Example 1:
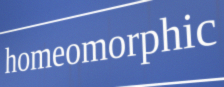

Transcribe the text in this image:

homeomorphic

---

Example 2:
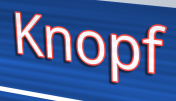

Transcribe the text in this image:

Knopf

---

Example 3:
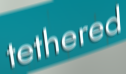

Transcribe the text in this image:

tethered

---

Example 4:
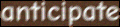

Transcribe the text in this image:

anticipate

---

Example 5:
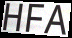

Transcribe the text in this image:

HFA